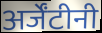
अर्जेंटीनी